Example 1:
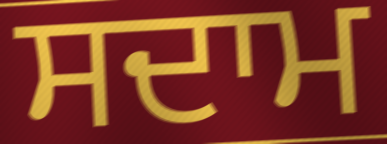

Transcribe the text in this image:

ਸਦਾਮ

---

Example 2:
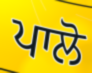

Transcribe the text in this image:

ਪਾਲੋ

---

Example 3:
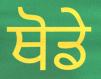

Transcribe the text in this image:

ਥੋਡੇ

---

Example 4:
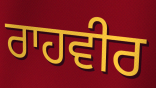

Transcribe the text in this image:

ਰਾਹਵੀਰ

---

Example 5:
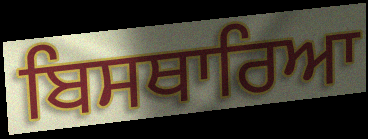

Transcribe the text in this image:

ਬਿਸਥਾਰਿਆ